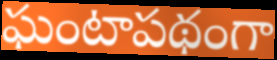
ఘంటాపథంగా